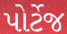
પોર્ટેજ